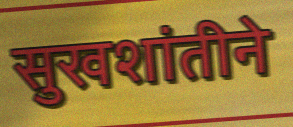
सुखशांतीने